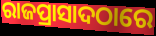
ରାଜପ୍ରାସାଦଠାରେ